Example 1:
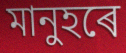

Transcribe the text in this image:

মানুহৰে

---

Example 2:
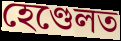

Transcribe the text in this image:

হেণ্ডেলত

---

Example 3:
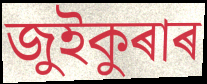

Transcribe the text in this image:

জুইকুৰাৰ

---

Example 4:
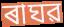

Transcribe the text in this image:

ৰাঘৱ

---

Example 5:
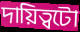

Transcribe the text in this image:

দায়িত্বটো